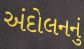
અંદોલનનું